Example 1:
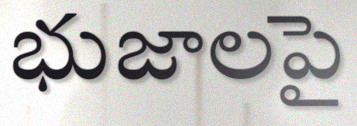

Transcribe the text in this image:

భుజాలపై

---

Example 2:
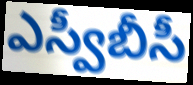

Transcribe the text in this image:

ఎస్వీబీసీ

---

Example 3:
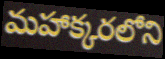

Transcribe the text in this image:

మహాక్కరలోని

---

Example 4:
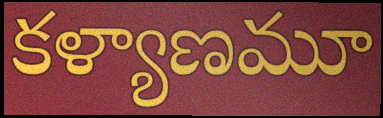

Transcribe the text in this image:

కళ్యాణమూ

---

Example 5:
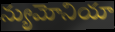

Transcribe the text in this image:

న్యుమోనియా